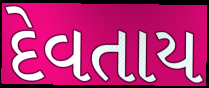
દેવતાય